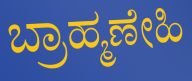
ಬ್ರಾಹ್ಮಣೇಹಿ